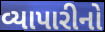
વ્યાપારીનો